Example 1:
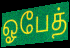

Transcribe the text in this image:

ஓபேத்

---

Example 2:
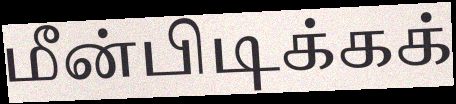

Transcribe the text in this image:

மீன்பிடிக்கக்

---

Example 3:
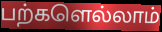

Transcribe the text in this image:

பற்களெல்லாம்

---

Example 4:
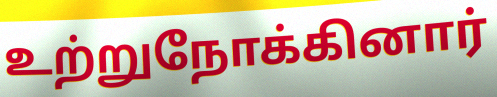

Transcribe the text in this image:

உற்றுநோக்கினார்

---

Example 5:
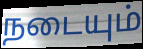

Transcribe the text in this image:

நடையும்